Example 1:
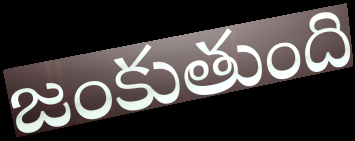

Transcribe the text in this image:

జంకుతుంది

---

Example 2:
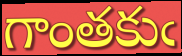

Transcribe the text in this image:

గాంతకుఁ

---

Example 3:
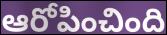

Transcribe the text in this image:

ఆరోపించింది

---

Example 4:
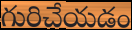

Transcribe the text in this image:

గురిచేయడం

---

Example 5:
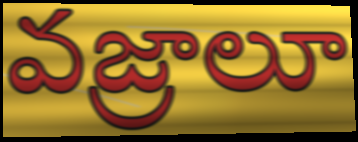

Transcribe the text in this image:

వజ్రాలూ